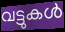
വട്ടുകൾ